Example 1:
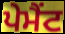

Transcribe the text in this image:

ਪੇਮੈਂਟ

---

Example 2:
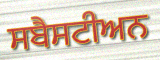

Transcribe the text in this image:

ਸਬੈਸਟੀਅਨ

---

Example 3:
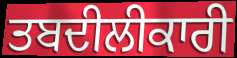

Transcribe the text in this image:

ਤਬਦੀਲੀਕਾਰੀ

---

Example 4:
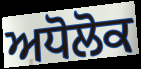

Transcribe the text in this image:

ਅਧੋਲੋਕ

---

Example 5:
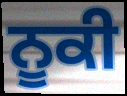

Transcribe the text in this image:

ਨੂਕੀ